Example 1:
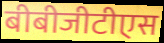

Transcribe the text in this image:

बीबीजीटीएस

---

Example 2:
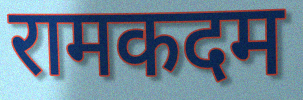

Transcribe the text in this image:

रामकदम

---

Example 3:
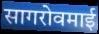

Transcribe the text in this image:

सागरोवमाई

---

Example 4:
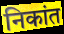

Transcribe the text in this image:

निकांत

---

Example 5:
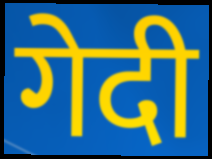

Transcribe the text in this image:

गेदी